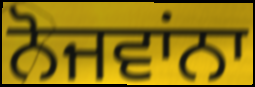
ਨੋਜਵਾਂਨਾ